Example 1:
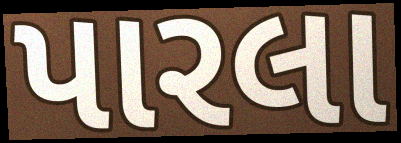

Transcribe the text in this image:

પારલા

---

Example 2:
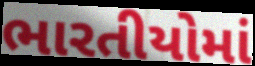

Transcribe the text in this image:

ભારતીયોમાં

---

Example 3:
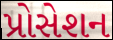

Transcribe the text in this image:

પ્રોસેશન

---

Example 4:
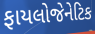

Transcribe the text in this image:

ફાયલોજેનેટિક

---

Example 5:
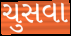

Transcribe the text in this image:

ચુસવા